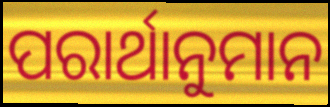
ପରାର୍ଥାନୁମାନ